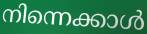
നിന്നെക്കാൾ